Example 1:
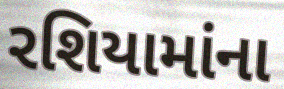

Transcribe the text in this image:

રશિયામાંના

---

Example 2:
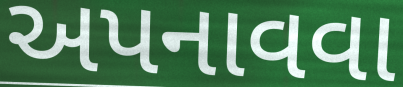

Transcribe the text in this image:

અપનાવવા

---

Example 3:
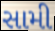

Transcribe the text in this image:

સામી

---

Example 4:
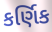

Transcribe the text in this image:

કર્ણિક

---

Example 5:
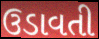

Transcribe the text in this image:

ઉડાવતી